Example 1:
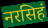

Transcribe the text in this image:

नरसिहं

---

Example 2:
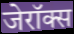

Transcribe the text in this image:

जेरॉक्स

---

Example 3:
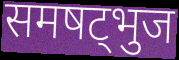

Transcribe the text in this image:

समषट्भुज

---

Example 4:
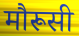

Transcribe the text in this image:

मौरूसी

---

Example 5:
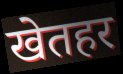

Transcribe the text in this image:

खेतहर